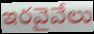
ఇరవైవేలు